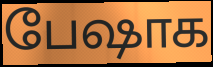
பேஷாக